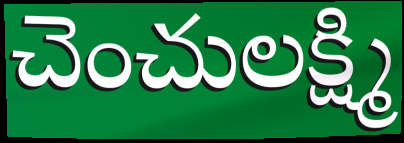
చెంచులక్ష్మి